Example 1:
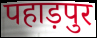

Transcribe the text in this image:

पहाड़पुर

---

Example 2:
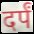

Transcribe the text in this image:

दर्पं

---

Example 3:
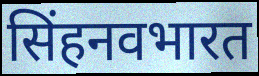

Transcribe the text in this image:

सिंहनवभारत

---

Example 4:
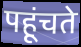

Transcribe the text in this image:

पहूंचते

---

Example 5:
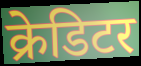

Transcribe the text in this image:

क्रेडिटर